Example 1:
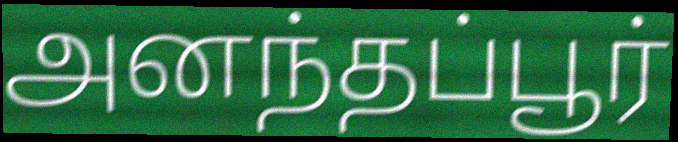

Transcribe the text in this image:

அனந்தப்பூர்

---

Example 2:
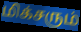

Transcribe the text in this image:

மிக்சரும்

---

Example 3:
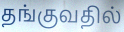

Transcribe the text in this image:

தங்குவதில்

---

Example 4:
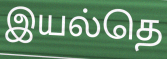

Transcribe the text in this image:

இயல்தெ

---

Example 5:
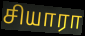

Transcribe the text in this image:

சியாரா